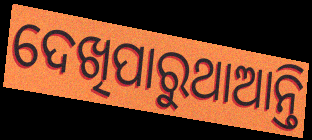
ଦେଖିପାରୁଥାଆନ୍ତି